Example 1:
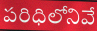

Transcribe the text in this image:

పరిధిలోనివే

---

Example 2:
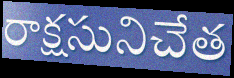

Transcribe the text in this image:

రాక్షసునిచేత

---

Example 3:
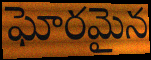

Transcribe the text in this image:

ఘోరమైన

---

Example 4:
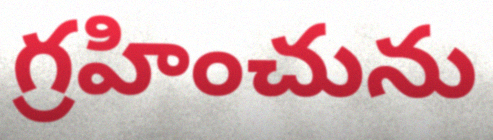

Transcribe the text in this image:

గ్రహించును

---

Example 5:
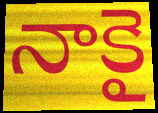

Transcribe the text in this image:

నాకై